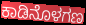
ಕಾಡಿನೊಳಗಣ